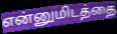
என்னுமிடத்தை